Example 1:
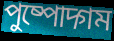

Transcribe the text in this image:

পুষ্পোদ্গম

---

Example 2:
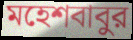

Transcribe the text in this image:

মহেশবাবুর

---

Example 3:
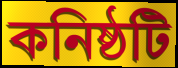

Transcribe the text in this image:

কনিষ্ঠটি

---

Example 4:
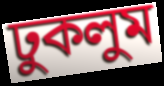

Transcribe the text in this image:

ঢুকলুম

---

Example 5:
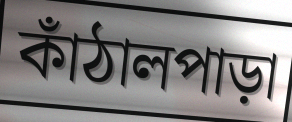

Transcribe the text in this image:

কাঁঠালপাড়া